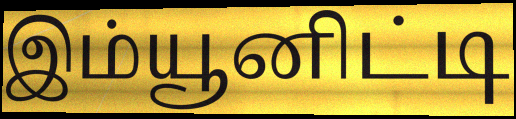
இம்யூனிட்டி